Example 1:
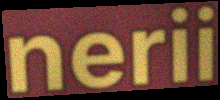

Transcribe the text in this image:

nerii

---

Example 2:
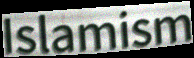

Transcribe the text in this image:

Islamism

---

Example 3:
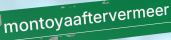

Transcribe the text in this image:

montoyaaftervermeer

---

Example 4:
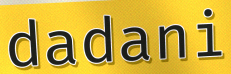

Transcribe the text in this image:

dadani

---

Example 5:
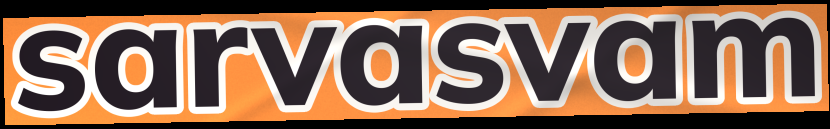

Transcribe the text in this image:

sarvasvam